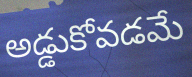
అడ్డుకోవడమే